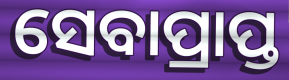
ସେବାପ୍ରାପ୍ତ